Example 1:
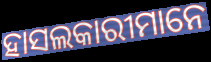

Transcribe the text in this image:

ହାସଲକାରୀମାନେ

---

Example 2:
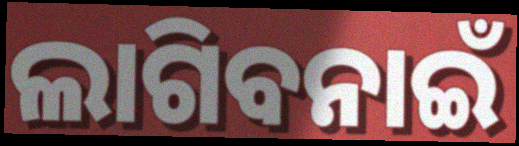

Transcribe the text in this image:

ଲାଗିବନାଇଁ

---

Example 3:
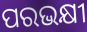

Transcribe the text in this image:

ପରଭକ୍ଷୀ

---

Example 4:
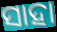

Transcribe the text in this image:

ସାହା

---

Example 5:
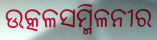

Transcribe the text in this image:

ଉତ୍କଳସମ୍ମିଳନୀର